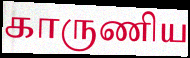
காருணிய